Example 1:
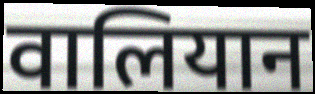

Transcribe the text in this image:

वालियान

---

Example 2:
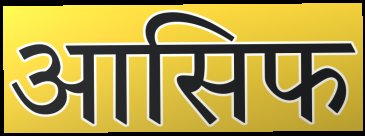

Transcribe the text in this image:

आसिफ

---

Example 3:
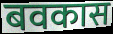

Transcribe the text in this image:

बवकास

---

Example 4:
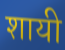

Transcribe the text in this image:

शायी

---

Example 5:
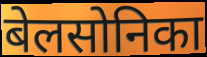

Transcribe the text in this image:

बेलसोनिका